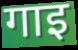
गाइ